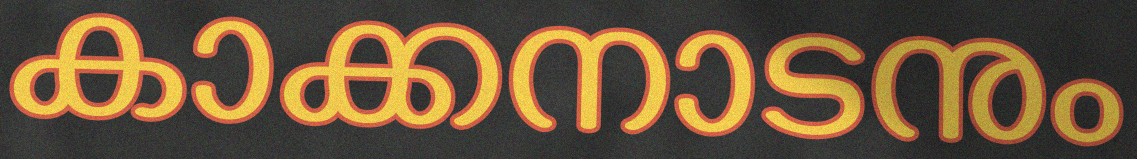
കാക്കനാടനും